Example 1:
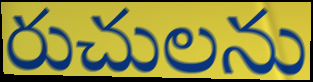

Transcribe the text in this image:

రుచులను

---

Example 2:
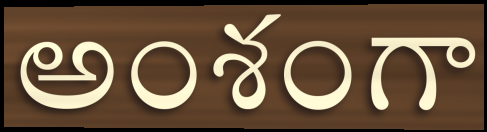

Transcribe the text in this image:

అంశంగా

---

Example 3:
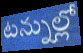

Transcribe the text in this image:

టన్నుల్లో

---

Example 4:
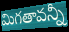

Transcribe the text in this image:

మిగతావన్నీ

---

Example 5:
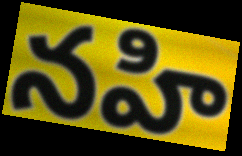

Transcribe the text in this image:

నహి